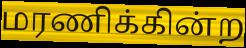
மரணிக்கின்ற